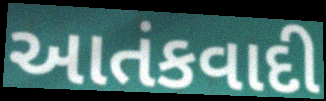
આતંકવાદી